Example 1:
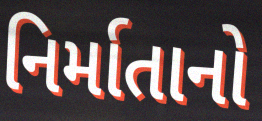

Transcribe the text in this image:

નિર્માતાનો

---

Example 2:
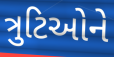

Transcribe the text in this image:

ત્રુટિઓને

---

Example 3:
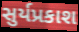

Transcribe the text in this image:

સુર્યપ્રકાશ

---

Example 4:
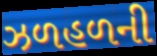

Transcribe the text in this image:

ઝળહળની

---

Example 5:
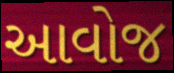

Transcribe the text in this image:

આવોજ